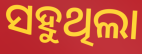
ସହୁଥିଲା